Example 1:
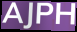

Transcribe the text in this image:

AJPH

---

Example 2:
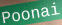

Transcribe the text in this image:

Poonai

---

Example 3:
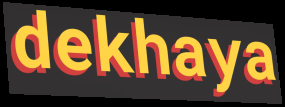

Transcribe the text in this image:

dekhaya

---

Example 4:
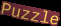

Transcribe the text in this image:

Puzzle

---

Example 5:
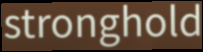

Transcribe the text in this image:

stronghold